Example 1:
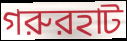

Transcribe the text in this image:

গরুরহাট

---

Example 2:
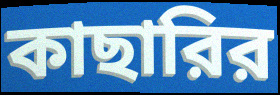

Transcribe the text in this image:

কাছারির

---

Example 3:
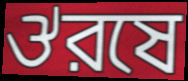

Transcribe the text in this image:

ঔরষে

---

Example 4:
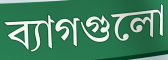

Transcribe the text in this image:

ব্যাগগুলো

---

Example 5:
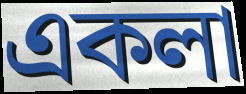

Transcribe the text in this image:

একলা